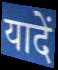
यादें